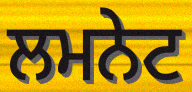
ਲਮਨੇਟ